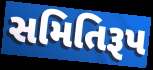
સમિતિરૂપ